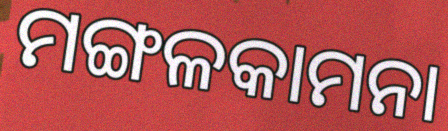
ମଙ୍ଗଳକାମନା